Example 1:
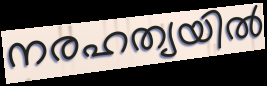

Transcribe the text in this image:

നരഹത്യയിൽ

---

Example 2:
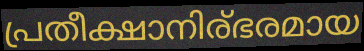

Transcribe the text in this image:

പ്രതീക്ഷാനിര്ഭരമായ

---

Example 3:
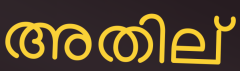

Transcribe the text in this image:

അതില്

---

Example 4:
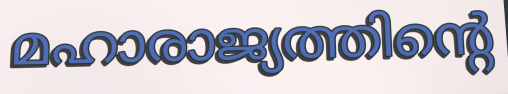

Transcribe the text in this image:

മഹാരാജ്യത്തിന്റെ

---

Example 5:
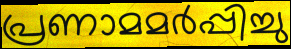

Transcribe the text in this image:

പ്രണാമമർപ്പിച്ചു